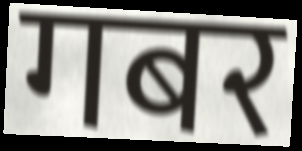
गबर